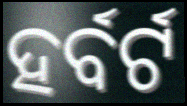
ହର୍ବର୍ଟ